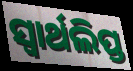
ସ୍ୱାର୍ଥଲିପ୍ତ